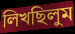
লিখছিলুম